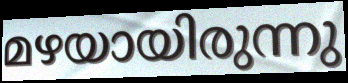
മഴയായിരുന്നു